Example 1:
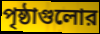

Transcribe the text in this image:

পৃষ্ঠাগুলোর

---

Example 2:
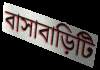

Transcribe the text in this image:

বাসাবাড়িটি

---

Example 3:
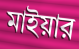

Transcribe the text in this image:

মাইয়ার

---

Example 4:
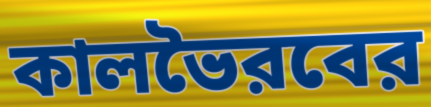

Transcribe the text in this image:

কালভৈরবের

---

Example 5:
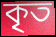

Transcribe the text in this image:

কৃত